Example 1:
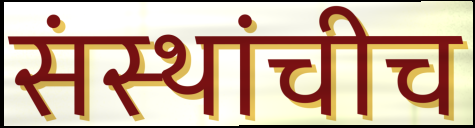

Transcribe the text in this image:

संस्थांचीच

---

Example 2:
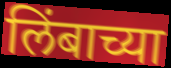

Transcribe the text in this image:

लिंबाच्या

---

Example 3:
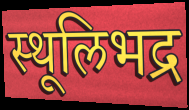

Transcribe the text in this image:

स्थूलिभद्र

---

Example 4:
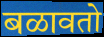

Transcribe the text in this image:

बळावतो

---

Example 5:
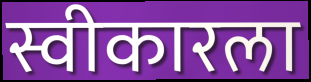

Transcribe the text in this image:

स्वीकारला